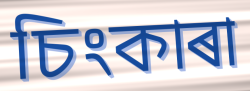
চিংকাৰা